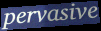
pervasive